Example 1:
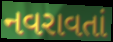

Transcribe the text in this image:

નવરાવતાં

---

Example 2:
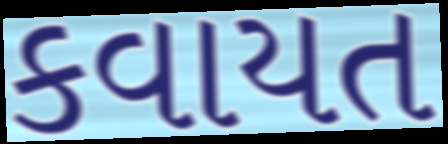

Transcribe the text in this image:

કવાયત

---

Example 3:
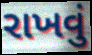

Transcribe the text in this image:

રાખવું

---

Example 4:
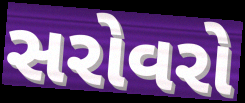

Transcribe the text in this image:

સરોવરો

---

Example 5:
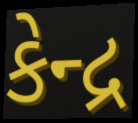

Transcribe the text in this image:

કેન્દ્ર